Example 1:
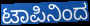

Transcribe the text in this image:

ಟಾಪಿನಿಂದ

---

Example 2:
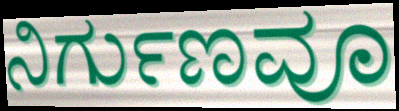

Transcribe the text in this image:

ನಿರ್ಗುಣವೂ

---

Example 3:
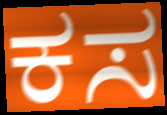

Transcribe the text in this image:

ಕಸ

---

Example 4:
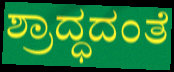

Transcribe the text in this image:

ಶ್ರಾದ್ಧದಂತೆ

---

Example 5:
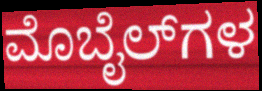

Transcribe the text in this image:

ಮೊಬೈಲ್‌ಗಳ